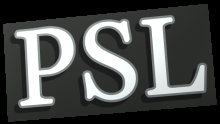
PSL